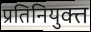
प्रतिनियुक्त